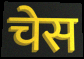
चेस